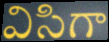
విసిగా